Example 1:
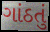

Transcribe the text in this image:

ગાંઠતું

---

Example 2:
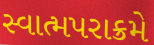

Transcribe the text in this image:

સ્વાત્મપરાક્રમે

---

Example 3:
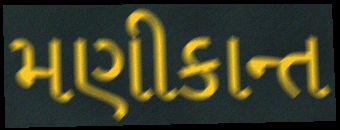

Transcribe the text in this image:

મણીકાન્ત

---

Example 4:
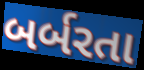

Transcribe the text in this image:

બર્બરતા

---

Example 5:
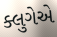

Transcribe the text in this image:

ક્લુગેએ